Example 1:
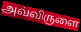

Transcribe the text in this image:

அவ்விருளை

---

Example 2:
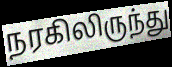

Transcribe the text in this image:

நரகிலிருந்து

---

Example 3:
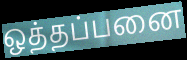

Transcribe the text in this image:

ஒத்தப்பனை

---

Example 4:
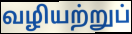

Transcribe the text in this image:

வழியற்றுப்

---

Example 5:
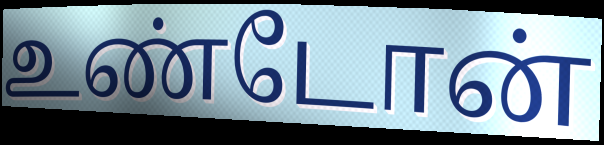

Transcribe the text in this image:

உண்டோன்